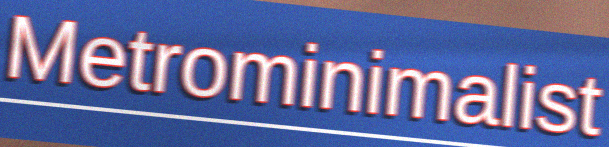
Metrominimalist